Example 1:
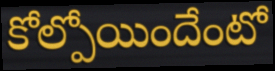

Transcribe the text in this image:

కోల్పోయిందేంటో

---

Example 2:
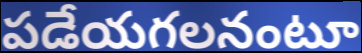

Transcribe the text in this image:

పడేయగలనంటూ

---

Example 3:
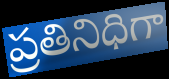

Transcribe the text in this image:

ప్రతినిధిగా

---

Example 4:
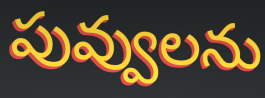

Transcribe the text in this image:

పువ్వులను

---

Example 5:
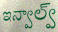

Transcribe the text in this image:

ఇన్వాల్వ్